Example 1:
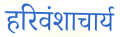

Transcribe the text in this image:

हरिवंशाचार्य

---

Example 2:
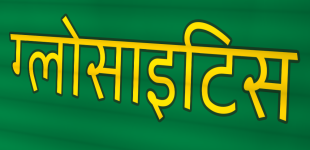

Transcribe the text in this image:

ग्लोसाइटिस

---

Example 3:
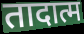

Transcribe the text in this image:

तादात्म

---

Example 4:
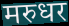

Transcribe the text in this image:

मरुधर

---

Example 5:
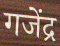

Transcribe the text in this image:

गजेंद्र